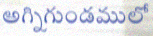
అగ్నిగుండములో